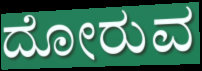
ದೋರುವ